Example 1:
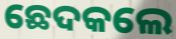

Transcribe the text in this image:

ଛେଦକଲେ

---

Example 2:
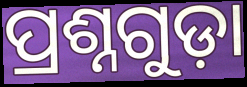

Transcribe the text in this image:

ପ୍ରଶ୍ନଗୁଡ଼ା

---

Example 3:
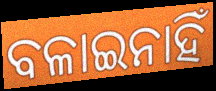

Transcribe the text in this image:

ବଳାଇନାହିଁ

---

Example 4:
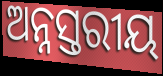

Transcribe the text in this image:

ଅନ୍ନସ୍ତରୀୟ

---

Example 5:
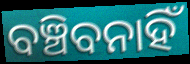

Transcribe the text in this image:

ବଞ୍ଚିବନାହିଁ